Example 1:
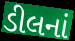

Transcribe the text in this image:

ડીલનાં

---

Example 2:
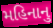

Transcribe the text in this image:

મહિનાનુ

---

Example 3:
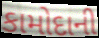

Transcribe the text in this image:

કામોદાની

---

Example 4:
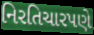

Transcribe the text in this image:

નિરતિચારપણે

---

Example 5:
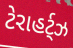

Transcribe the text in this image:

ટેરાહર્ટ્ઝ